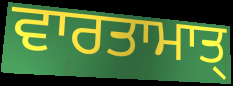
ਵਾਰਤਾਮਾਤ੍